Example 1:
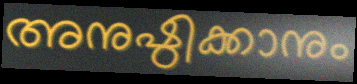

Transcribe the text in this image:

അനുഷ്ഠിക്കാനും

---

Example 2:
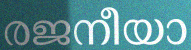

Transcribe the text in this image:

രജനീയാ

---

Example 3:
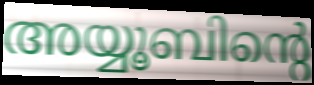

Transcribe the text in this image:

അയ്യൂബിന്റെ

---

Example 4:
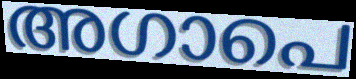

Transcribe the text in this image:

അഗാപെ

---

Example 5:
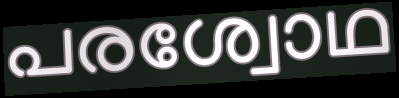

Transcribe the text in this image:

പരശ്വോഥ